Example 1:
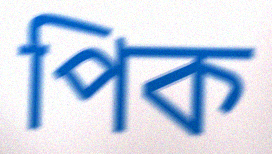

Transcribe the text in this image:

পিক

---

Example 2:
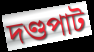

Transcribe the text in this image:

দণ্ডপাট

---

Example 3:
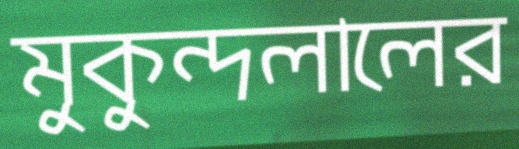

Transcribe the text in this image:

মুকুন্দলালের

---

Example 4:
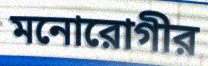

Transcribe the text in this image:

মনোরোগীর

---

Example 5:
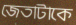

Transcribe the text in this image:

জেতাটাকে